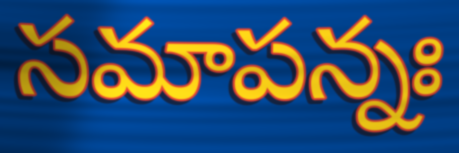
సమాపన్నః